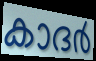
കാദർ